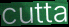
cutta